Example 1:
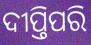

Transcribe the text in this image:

ଦୀପ୍ତିପରି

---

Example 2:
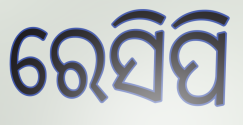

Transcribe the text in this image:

ରେସିପି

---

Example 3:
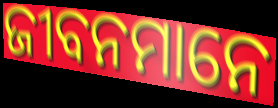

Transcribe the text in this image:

ଜୀବନମାନେ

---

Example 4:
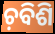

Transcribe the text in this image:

ଚ଼ବିଶି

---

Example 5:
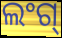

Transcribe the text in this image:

ଲଂଗ୍